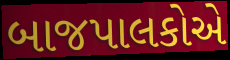
બાજપાલકોએ